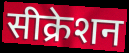
सीक्रेशन